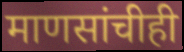
माणसांचीही